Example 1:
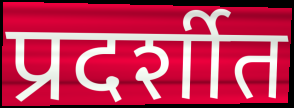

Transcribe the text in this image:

प्रदर्शीत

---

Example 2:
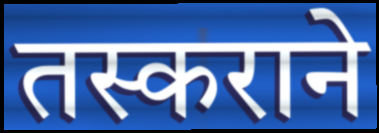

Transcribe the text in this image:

तस्कराने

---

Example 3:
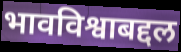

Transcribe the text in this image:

भावविश्वाबद्दल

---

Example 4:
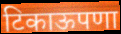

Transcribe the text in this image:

टिकाऊपणा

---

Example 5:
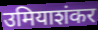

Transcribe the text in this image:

उमियाशंकर